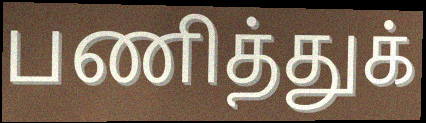
பணித்துக்